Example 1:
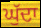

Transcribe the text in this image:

ਘੁੱਦਾ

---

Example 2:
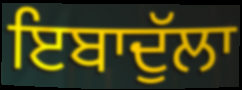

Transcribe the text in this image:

ਇਬਾਦੁੱਲਾ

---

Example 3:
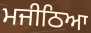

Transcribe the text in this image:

ਮਜੀਠਿਆ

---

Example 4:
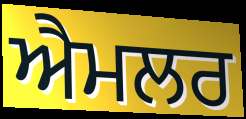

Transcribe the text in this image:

ਐਮਲਰ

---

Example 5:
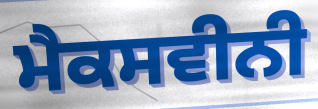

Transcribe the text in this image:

ਮੈਕਸਵੀਨੀ